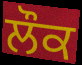
ਲੌਕ